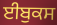
ਈਬੁਕਸ